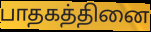
பாதகத்தினை